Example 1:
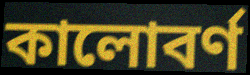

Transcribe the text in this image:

কালোবর্ণ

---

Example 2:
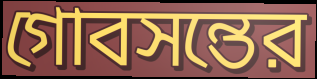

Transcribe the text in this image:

গোবসন্তের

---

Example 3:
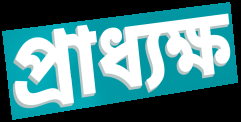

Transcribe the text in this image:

প্রাধ্যক্ষ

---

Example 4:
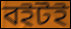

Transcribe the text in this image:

বইটই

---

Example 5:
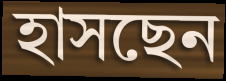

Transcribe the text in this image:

হাসছেন